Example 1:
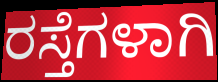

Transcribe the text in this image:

ರಸ್ತೆಗಳಾಗಿ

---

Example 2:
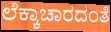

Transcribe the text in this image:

ಲೆಕ್ಕಾಚಾರದಂತೆ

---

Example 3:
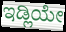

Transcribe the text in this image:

ಇಡ್ಲಿಯೇ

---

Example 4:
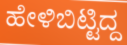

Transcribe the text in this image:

ಹೇಳಿಬಿಟ್ಟಿದ್ದ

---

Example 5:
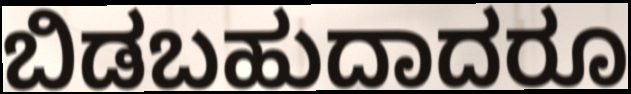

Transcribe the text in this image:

ಬಿಡಬಹುದಾದರೂ